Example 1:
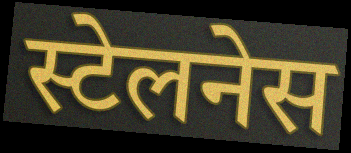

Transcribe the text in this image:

स्टेलनेस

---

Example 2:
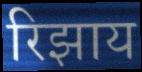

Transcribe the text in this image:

रिझाय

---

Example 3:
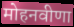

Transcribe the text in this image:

मोहनवीणा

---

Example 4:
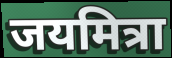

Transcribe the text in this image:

जयमित्रा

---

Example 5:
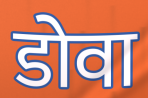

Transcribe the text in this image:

डोवा